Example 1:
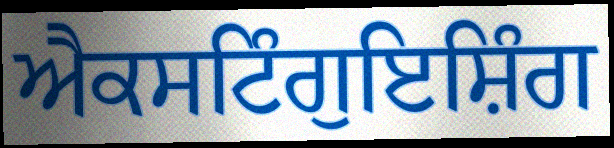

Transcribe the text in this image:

ਐਕਸਟਿੰਗੁਇਸ਼ਿੰਗ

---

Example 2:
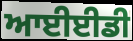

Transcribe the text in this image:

ਆਈਈਡੀ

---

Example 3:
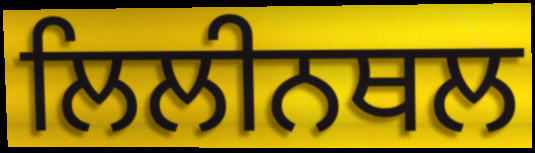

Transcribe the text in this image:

ਲਿਲੀਨਥਲ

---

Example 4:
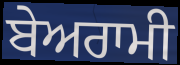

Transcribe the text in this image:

ਬੇਅਰਾਮੀ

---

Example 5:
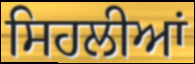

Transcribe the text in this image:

ਸਿਹਲੀਆਂ